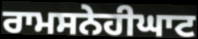
ਰਾਮਸਨੇਹੀਘਾਟ